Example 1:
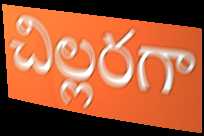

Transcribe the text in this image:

చిల్లరగా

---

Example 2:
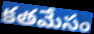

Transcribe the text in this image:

కతమేసం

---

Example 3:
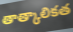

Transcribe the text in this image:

తాత్కాలికత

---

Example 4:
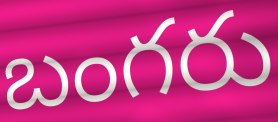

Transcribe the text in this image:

బంగరు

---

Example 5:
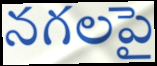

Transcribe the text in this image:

నగలపై